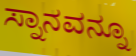
ಸ್ನಾನವನ್ನೂ